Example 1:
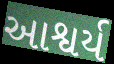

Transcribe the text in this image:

આશ્વર્ય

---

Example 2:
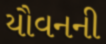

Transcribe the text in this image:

યૌવનની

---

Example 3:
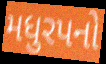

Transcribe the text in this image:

મધુરપનો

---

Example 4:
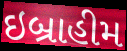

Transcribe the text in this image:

ઇબ્રાહીમ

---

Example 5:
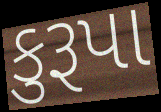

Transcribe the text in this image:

કુરૂપા